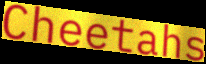
Cheetahs